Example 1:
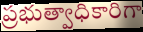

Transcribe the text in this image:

ప్రభుత్వాధికారిగా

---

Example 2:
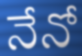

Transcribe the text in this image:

నేనో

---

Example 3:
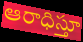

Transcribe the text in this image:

ఆరాధిస్తూ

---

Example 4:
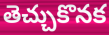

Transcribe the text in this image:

తెచ్చుకొనక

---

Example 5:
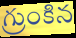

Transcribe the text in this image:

గ్రుంకిన